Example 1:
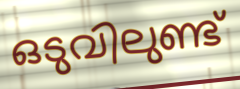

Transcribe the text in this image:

ഒടുവിലുണ്ട്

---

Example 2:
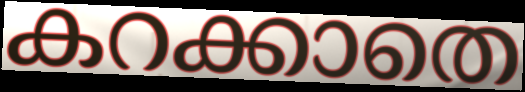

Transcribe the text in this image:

കറക്കാതെ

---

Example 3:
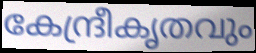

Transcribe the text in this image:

കേന്ദ്രീകൃതവും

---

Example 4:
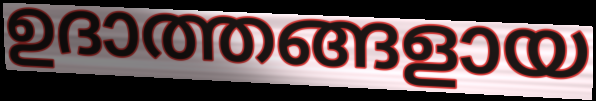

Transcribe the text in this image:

ഉദാത്തങ്ങളായ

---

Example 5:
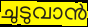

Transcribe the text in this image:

ചുടുവാൻ